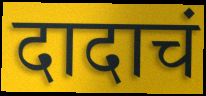
दादाचं